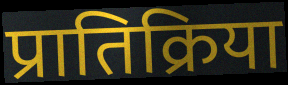
प्रातिक्रिया